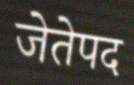
जेतेपद